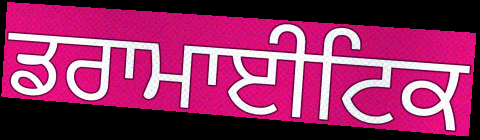
ਡਰਾਮਾਈਟਿਕ